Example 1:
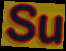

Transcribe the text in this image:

Su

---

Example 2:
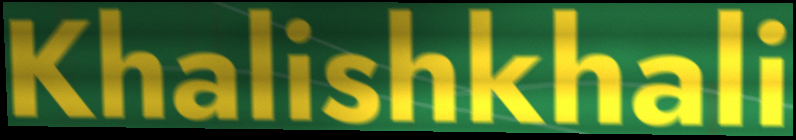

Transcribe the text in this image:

Khalishkhali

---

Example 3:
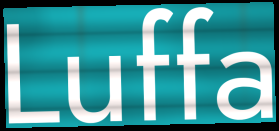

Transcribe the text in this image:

Luffa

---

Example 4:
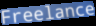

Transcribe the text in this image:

Freelance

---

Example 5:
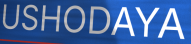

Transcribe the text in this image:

USHODAYA